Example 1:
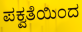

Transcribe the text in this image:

ಪಕ್ವತೆಯಿಂದ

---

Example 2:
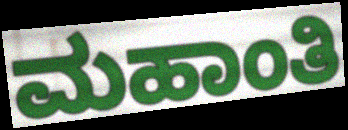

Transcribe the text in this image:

ಮಹಾಂತಿ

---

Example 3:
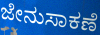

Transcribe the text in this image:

ಜೇನುಸಾಕಣೆ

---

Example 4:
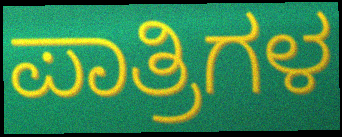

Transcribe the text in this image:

ಪಾತ್ರಿಗಳ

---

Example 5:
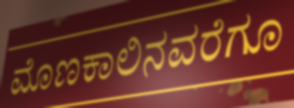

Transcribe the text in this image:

ಮೊಣಕಾಲಿನವರೆಗೂ